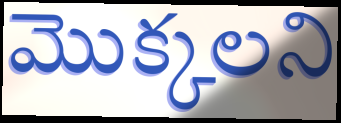
మొక్కలని